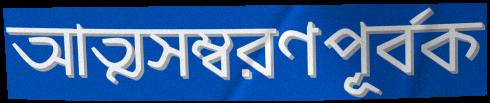
আত্মসম্বরণপূর্বক